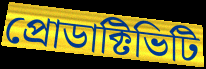
প্রোডাক্টিভিটি